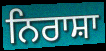
ਨਿਰਾਸ਼ਾ